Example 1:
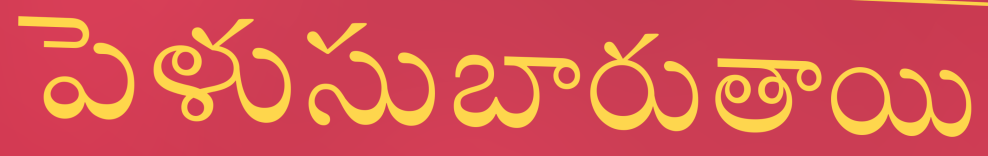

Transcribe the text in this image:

పెళుసుబారుతాయి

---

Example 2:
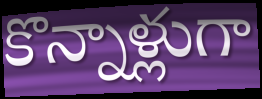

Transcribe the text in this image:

కొన్నాళ్లుగా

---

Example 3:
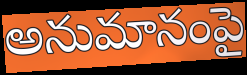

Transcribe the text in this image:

అనుమానంపై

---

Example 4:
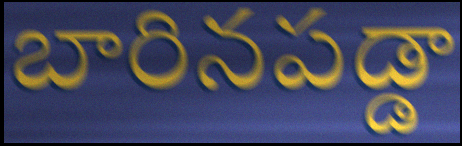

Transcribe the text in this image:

బారినపడ్డా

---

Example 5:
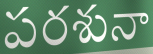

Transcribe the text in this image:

పరశునా